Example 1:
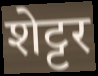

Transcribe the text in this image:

शेट्टर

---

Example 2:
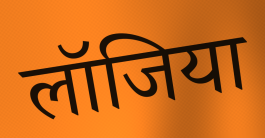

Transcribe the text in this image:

लॉजिया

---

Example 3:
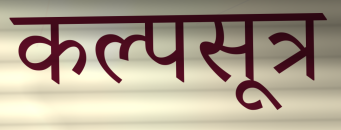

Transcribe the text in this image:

कल्पसूत्र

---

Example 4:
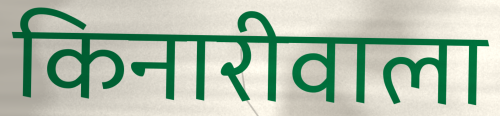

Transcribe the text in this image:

किनारीवाला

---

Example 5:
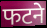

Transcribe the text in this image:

फटने